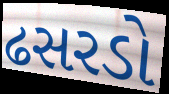
ઢસરડો